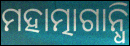
ମହାତ୍ମାଗାନ୍ଧି